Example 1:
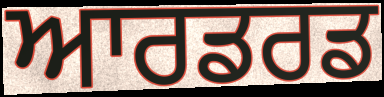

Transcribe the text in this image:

ਆਰਡਰਡ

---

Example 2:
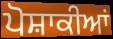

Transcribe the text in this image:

ਪੋਸ਼ਾਕੀਆਂ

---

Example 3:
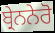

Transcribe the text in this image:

ਬ੍ਰੇਨਨੇਰੋ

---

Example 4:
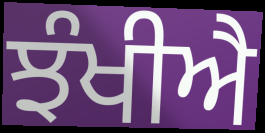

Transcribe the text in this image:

ਝੰਖੀਐ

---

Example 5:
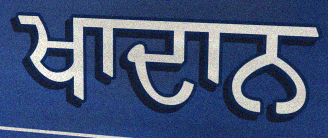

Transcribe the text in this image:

ਖਾਦਾਨ